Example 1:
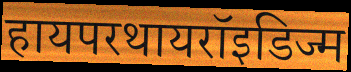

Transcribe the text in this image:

हायपरथायरॉइडिज्म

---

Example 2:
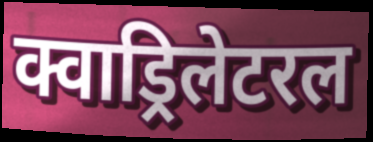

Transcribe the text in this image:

क्वाड्रिलेटरल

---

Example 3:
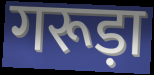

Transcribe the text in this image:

गरूड़ा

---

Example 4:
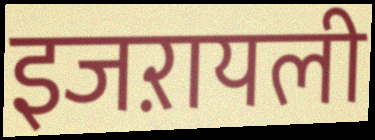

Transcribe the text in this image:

इजऱायली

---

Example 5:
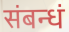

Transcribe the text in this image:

संबन्धं